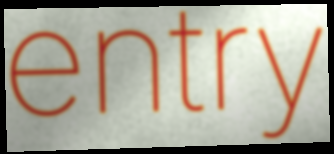
entry